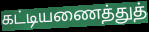
கட்டியணைத்துத்